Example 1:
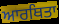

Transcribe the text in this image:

ਆਰਥਿਤਾ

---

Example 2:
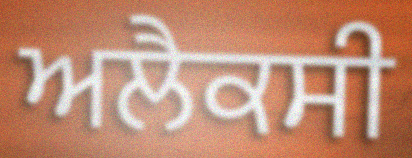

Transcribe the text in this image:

ਅਲੈਕਸੀ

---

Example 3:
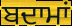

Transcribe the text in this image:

ਬਦਾਮਾਂ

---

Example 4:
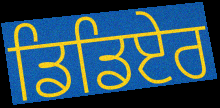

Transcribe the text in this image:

ਡਿਡਿਏਰ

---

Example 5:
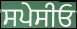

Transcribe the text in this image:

ਸਪੇਸੀਓ